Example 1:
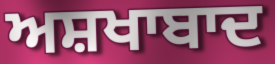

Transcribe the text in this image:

ਅਸ਼ਖਾਬਾਦ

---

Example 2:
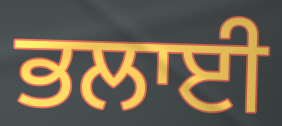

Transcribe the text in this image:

ਭਲਾਈ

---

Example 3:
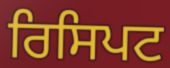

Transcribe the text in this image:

ਰਿਸਿਪਟ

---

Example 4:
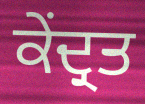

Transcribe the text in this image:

ਕੇਂਦ੍ਰਤ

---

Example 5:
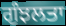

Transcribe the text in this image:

ਗੁੰਝਲਤਾ